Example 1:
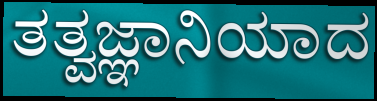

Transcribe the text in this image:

ತತ್ವಜ್ಞಾನಿಯಾದ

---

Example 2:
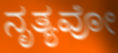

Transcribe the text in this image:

ನೃತ್ಯವೋ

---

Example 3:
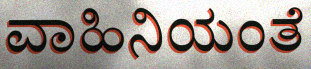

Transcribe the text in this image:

ವಾಹಿನಿಯಂತೆ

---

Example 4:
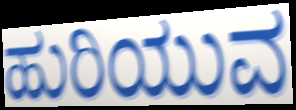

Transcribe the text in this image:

ಹುರಿಯುವ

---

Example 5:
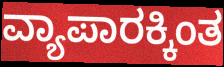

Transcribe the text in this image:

ವ್ಯಾಪಾರಕ್ಕಿಂತ